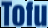
Tofu